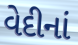
વેદીનાં